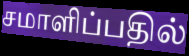
சமாளிப்பதில்